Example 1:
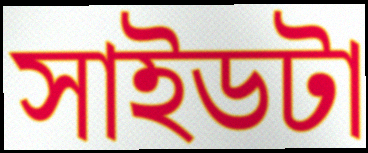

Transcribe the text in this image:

সাইডটা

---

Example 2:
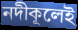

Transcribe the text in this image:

নদীকূলেই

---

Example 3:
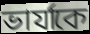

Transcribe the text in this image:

ভার্যাকে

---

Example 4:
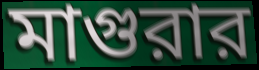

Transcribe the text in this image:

মাগুরার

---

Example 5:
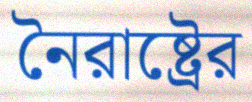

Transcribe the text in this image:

নৈরাষ্ট্রের